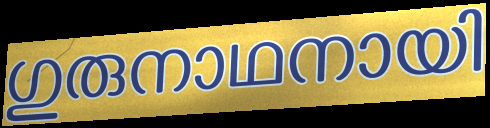
ഗുരുനാഥനായി